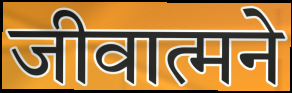
जीवात्मने